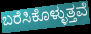
ಬರೆಸಿಕೊಳ್ಳುತ್ತವೆ